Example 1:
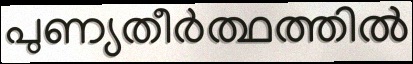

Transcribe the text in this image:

പുണ്യതീർത്ഥത്തിൽ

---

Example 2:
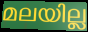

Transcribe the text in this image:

മലയില്ല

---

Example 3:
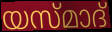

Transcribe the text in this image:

യസ്മാദ്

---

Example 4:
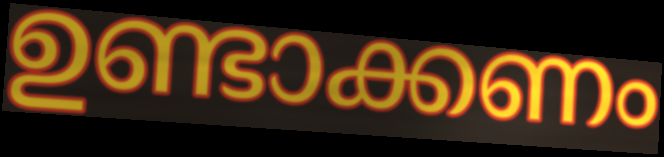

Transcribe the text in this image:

ഉണ്ടാക്കണം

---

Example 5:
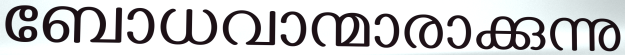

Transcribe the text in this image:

ബോധവാന്മാരാക്കുന്നു